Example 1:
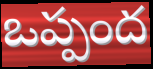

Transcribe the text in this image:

ఒప్పంద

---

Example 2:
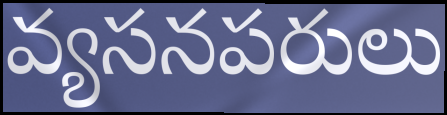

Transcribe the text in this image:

వ్యసనపరులు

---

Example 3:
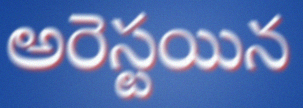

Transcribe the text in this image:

అరెస్టయిన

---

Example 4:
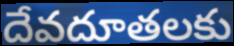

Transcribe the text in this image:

దేవదూతలకు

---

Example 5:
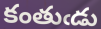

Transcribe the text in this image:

కంతుఁడు